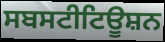
ਸਬਸਟੀਟਿਊਸ਼ਨ